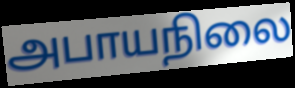
அபாயநிலை